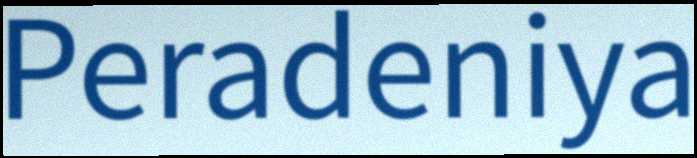
Peradeniya